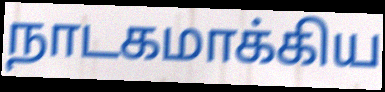
நாடகமாக்கிய